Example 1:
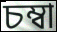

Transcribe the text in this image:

চম্বা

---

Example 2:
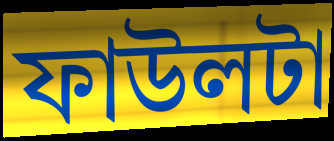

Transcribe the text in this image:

ফাউলটা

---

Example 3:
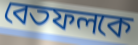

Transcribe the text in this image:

বেতফলকে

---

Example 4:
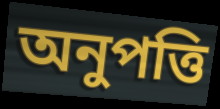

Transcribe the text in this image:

অনুপত্তি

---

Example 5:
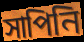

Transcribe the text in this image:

সাপিনি